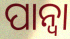
ପାନ୍ଵା